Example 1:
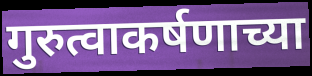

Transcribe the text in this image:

गुरुत्वाकर्षणाच्या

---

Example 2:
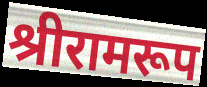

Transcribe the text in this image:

श्रीरामरूप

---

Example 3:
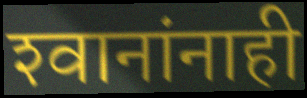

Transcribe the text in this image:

श्वानांनाही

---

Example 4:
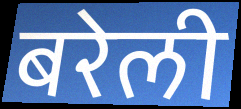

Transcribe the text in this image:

बरेली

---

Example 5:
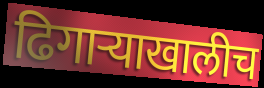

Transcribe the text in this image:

ढिगाऱ्याखालीच